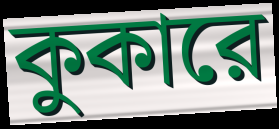
কুকারে